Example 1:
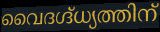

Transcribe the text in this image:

വൈദഗ്ദ്ധ്യത്തിന്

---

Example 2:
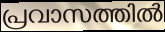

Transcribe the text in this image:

പ്രവാസത്തിൽ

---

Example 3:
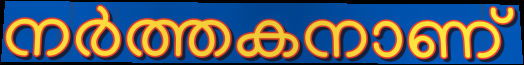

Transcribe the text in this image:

നർത്തകനാണ്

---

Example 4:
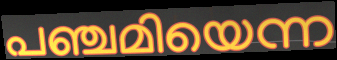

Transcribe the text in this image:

പഞ്ചമിയെന്ന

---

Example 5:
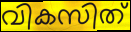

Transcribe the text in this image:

വികസിത്